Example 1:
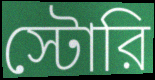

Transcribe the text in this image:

স্টোরি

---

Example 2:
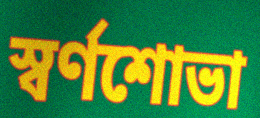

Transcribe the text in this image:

স্বর্ণশোভা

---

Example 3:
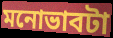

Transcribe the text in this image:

মনোভাবটা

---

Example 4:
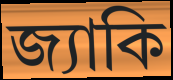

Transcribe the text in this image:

জ্যাকি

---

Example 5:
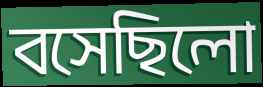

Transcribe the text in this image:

বসেছিলো